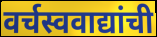
वर्चस्ववाद्यांची